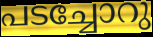
പടച്ചോറു